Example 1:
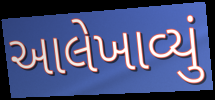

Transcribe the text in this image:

આલેખાવ્યું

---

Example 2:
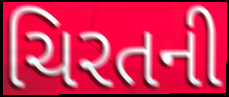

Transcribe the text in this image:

ચિરતની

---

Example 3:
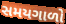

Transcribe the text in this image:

સમયગાળો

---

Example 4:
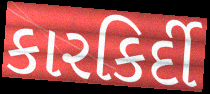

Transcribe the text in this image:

કારકિર્દી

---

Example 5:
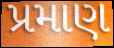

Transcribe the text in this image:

પ્રમાણ